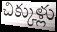
చిక్కుళ్లు